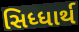
સિધ્ધાર્થ